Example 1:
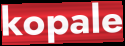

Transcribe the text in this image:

kopale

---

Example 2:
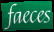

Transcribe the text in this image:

faeces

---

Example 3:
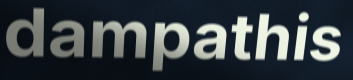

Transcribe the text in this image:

dampathis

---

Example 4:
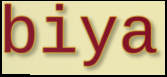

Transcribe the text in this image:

biya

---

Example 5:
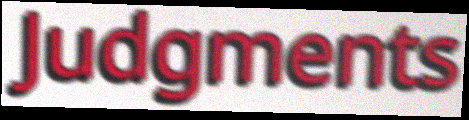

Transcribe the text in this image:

Judgments